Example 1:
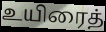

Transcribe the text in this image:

உயிரைத்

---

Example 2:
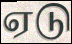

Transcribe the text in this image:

ஏடு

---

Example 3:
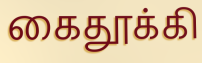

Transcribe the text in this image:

கைதூக்கி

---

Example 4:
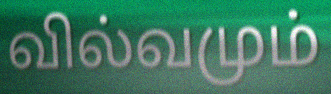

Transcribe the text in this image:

வில்வமும்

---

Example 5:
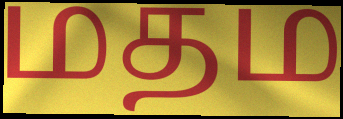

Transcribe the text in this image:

மதம